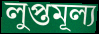
লুপ্তমূল্য